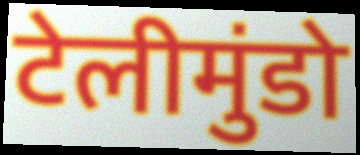
टेलीमुंडो